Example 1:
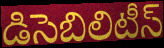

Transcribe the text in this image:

డిసెబిలిటీస్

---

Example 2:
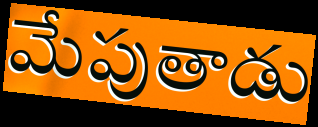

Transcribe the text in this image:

మేపుతాడు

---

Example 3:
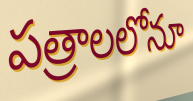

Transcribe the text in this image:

పత్రాలలోనూ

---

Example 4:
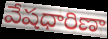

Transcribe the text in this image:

వేషధారిణా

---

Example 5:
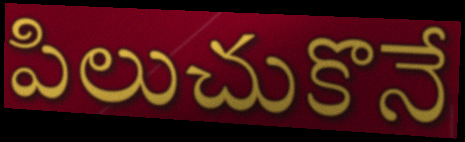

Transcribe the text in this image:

పిలుచుకొనే